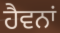
ਹੈਵਨਾਂ